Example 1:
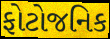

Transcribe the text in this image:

ફોટોજનિક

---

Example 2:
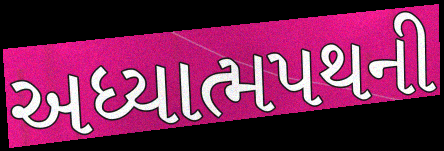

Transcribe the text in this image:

અધ્યાત્મપથની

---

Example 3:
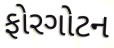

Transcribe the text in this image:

ફોરગોટન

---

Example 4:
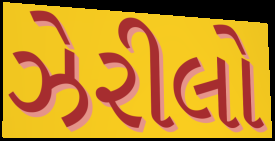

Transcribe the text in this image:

ઝેરીલો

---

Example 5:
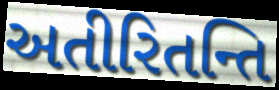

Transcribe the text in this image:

અતીરિતન્તિ